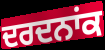
ਦਰਦਨਾਂਕ